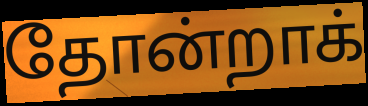
தோன்றாக்